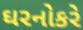
ઘરનોકરે